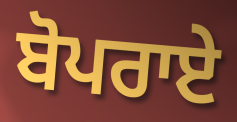
ਬੋਪਰਾਏ